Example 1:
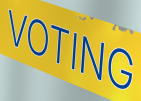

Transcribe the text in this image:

VOTING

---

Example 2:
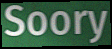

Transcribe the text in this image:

Soory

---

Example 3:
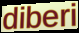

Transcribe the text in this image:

diberi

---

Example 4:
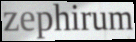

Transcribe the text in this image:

zephirum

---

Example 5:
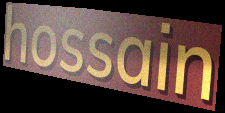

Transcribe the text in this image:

hossain